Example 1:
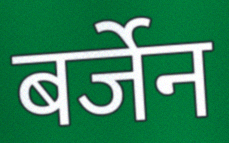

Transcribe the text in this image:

बर्जेन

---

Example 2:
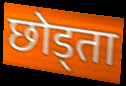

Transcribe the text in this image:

छोड्ता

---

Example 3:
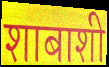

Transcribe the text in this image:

शाबाशी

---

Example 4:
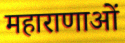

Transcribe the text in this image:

महाराणाओं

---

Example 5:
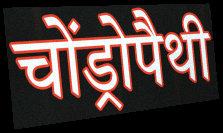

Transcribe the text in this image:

चोंड्रोपैथी